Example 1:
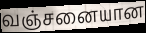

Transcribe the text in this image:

வஞ்சனையான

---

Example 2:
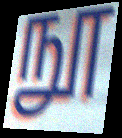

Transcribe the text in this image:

நூ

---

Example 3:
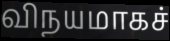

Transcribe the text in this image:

விநயமாகச்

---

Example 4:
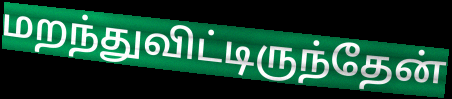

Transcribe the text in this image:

மறந்துவிட்டிருந்தேன்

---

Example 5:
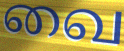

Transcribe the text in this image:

வை